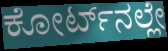
ಕೋರ್ಟ್‌ನಲ್ಲೇ